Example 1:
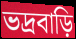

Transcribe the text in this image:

ভদ্রবাড়ি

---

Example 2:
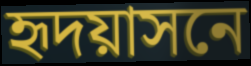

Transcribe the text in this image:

হৃদয়াসনে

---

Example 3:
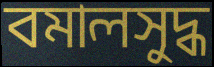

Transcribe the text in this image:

বমালসুদ্ধ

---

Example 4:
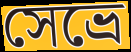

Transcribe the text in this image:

সেভ্রে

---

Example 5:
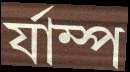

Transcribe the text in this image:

র্যাম্প